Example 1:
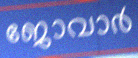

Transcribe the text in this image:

ജോവാർ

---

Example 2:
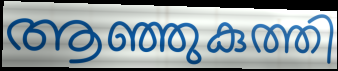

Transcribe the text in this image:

ആഞ്ഞുകുത്തി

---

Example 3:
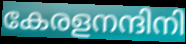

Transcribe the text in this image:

കേരളനന്ദിനി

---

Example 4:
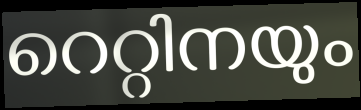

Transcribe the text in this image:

റെറ്റിനയും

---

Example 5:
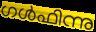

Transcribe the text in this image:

ഗൾഫിന്നു